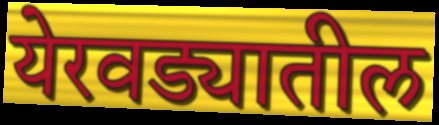
येरवड्यातील